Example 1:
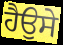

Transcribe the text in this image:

ਹੈਉਸੇ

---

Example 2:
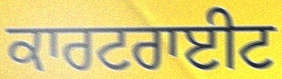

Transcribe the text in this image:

ਕਾਰਟਰਾਈਟ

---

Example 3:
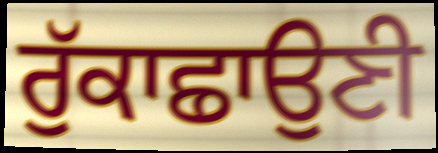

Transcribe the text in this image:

ਰੁੱਕਾਛਾਉਣੀ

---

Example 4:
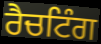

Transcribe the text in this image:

ਰੈਚਟਿੰਗ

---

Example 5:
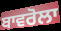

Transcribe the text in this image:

ਬਾਵਰੋਲਾ